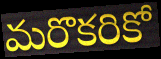
మరొకరికో